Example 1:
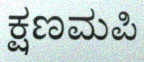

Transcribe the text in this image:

ಕ್ಷಣಮಪಿ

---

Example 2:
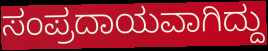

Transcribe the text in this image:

ಸಂಪ್ರದಾಯವಾಗಿದ್ದು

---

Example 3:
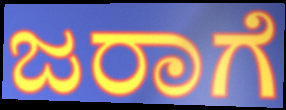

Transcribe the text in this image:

ಜರಾಗೆ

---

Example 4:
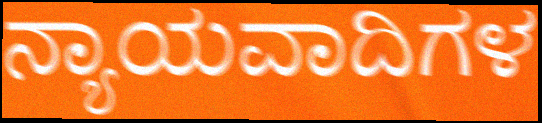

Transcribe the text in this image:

ನ್ಯಾಯವಾದಿಗಳ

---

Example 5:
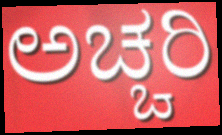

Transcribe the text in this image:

ಅಚ್ಚರಿ